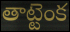
తాట్టెంక